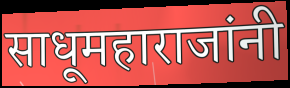
साधूमहाराजांनी